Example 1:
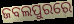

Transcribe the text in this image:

ଜବଲପୁରରେ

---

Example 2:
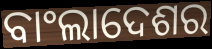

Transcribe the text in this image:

ବାଂଲାଦେଶର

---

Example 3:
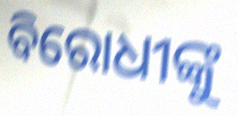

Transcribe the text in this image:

ବିରୋଧୀଙ୍କୁ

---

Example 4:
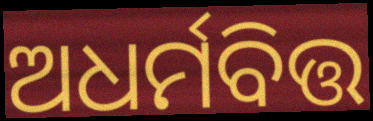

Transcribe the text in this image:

ଅଧର୍ମବିତ୍ତ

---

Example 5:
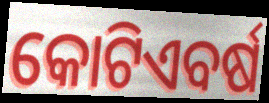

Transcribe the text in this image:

କୋଟିଏବର୍ଷ